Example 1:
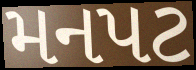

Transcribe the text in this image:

મનપટ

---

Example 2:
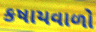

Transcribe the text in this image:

કષાયવાળો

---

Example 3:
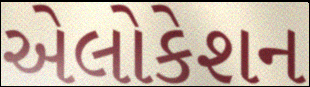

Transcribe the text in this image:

એલોકેશન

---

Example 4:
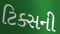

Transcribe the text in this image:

ટિક્સની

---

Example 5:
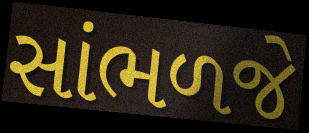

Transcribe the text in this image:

સાંભળજે